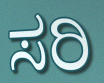
ಸರಿ